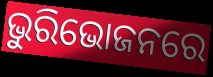
ଭୁରିଭୋଜନରେ